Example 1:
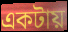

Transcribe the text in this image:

একটায়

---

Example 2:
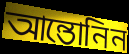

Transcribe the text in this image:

আন্তোনিন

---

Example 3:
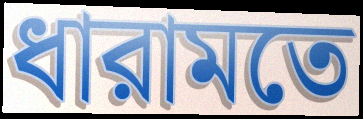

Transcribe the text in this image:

ধারামতে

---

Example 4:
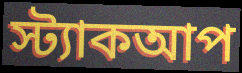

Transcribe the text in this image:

স্ট্যাকআপ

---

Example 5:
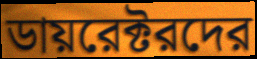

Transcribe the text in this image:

ডায়রেক্টরদের